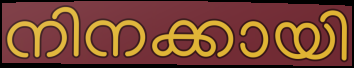
നിനക്കായി